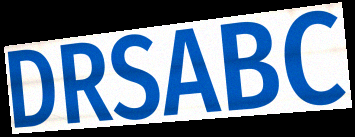
DRSABC